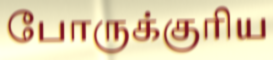
போருக்குரிய